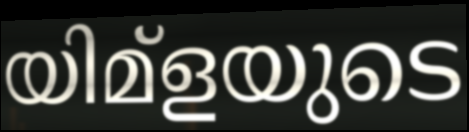
യിമ്ളയുടെ